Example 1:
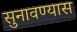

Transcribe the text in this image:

सुनावण्यास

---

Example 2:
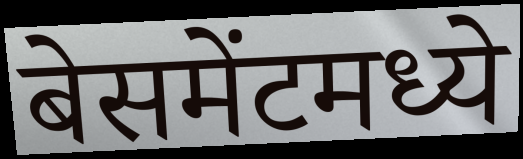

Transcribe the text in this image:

बेसमेंटमध्ये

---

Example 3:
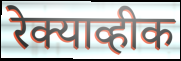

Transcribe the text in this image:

रेक्याव्हीक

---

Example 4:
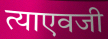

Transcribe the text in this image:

त्याएवजी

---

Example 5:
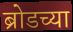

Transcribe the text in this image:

ब्रोडच्या